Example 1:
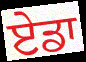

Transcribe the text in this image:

ਏਡਾ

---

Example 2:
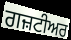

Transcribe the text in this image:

ਗਜ਼ਟੀਅਰ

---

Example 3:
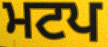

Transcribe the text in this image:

ਮਟਪ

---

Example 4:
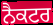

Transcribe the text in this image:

ਨੈਕਟਰ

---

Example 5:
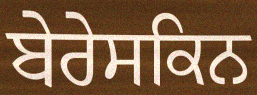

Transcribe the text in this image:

ਬੇਰੇਸਕਿਨ